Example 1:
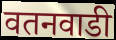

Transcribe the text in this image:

वतनवाडी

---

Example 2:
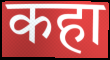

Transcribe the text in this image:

कहा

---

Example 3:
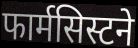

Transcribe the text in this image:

फार्मसिस्टने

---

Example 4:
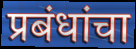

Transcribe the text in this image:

प्रबंधांचा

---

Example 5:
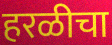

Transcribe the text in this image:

हरळीचा